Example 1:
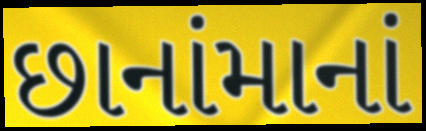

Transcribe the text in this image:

છાનાંમાનાં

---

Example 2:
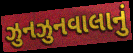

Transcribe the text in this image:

ઝુનઝુનવાલાનું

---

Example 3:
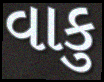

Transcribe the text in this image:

વાકુ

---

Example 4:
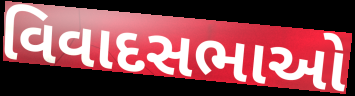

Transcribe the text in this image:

વિવાદસભાઓ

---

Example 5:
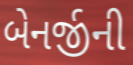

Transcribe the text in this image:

બેનર્જીની